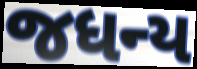
જધન્ય